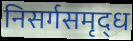
निसर्गसमृद्ध